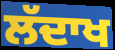
ਲੱਦਾਖ